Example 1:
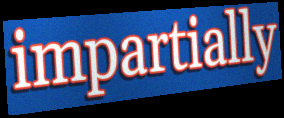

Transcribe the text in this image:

impartially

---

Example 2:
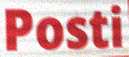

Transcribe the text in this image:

Posti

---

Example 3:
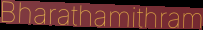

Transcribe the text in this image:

Bharathamithram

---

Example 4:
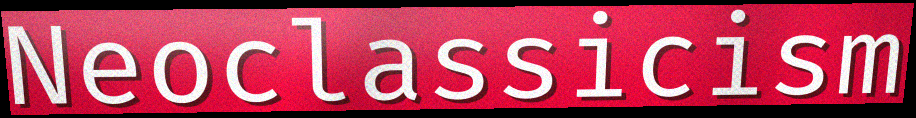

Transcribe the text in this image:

Neoclassicism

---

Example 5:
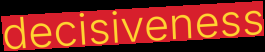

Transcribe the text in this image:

decisiveness